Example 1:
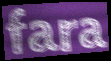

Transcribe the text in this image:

fara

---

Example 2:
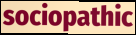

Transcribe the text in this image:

sociopathic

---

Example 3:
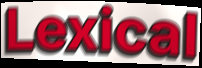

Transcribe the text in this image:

Lexical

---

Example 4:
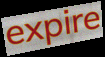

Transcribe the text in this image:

expire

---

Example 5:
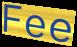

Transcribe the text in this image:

Fee